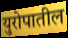
युरोपातील